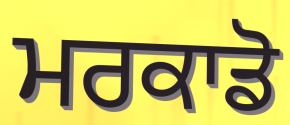
ਮਰਕਾਡੋ